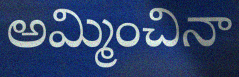
అమ్మించినా